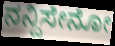
ನನ್ದಿಸೇನೋ